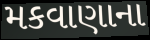
મકવાણાના